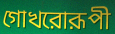
গোখরোরূপী